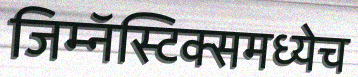
जिम्नॅस्टिक्समध्येच